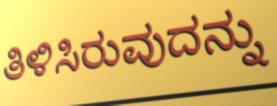
ತಿಳಿಸಿರುವುದನ್ನು